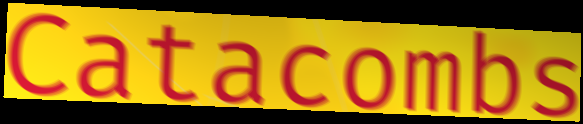
Catacombs